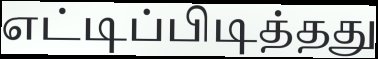
எட்டிப்பிடித்தது